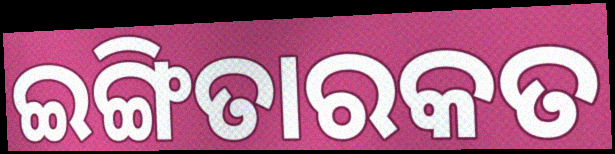
ଇଙ୍ଗିତାରକତ